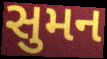
સુમન